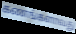
கணங்களாவது